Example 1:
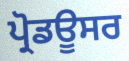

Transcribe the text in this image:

ਪ੍ਰੋਡਊਸਰ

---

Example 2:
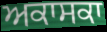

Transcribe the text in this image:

ਅਕਾਸਕਾ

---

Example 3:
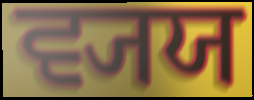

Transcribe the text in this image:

ਵ੍ਯਯ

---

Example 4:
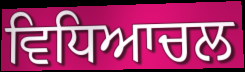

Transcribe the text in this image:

ਵਿਧਿਆਚਲ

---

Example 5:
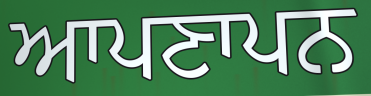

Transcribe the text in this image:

ਆਪਣਾਪਨ